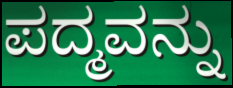
ಪದ್ಮವನ್ನು